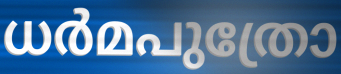
ധർമപുത്രോ